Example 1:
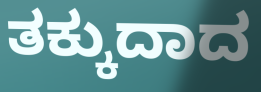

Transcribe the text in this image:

ತಕ್ಕುದಾದ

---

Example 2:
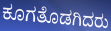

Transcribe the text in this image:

ಕೂಗತೊಡಗಿದರು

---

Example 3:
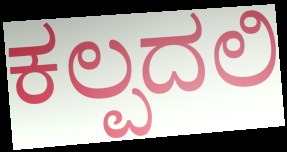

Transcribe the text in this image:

ಕಲ್ಪದಲಿ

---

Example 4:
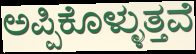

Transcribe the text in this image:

ಅಪ್ಪಿಕೊಳ್ಳುತ್ತವೆ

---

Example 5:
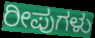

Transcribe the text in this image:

ರೀಪುಗಳು